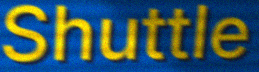
Shuttle